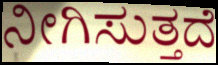
ನೀಗಿಸುತ್ತದೆ